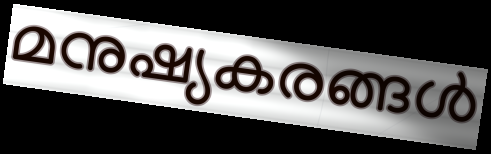
മനുഷ്യകരങ്ങൾ